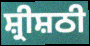
ਸ਼੍ਰੀਸ਼ਠੀ